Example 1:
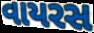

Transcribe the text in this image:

વાયરસ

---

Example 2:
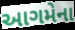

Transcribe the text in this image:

આગમેના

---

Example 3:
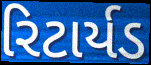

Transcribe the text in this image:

રિટાર્યડ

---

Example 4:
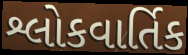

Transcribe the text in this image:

શ્લોકવાર્તિક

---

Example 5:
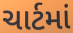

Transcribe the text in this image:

ચાર્ટમાં